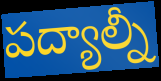
పద్యాల్నీ